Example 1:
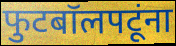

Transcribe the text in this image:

फुटबॉलपटूंना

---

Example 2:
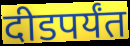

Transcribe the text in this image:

दीडपर्यंत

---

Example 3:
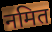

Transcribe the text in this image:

नमित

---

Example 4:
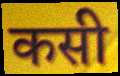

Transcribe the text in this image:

कसी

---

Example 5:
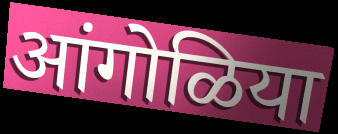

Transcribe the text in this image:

आंगोळिया